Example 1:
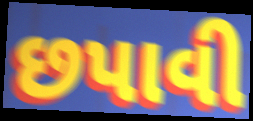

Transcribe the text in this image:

છપાવી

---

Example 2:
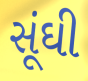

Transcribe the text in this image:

સૂંઘી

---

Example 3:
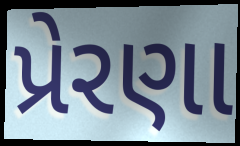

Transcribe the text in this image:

પ્રેરણા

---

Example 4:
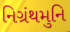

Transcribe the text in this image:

નિગ્રંથમુનિ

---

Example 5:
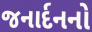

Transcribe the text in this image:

જનાર્દનનો